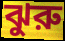
ঝুরু